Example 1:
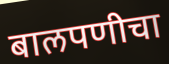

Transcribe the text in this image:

बालपणीचा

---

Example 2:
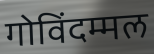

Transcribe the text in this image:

गोविंदम्मल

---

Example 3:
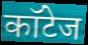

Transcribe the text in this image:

कॉटेज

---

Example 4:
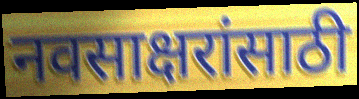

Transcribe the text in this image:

नवसाक्षरांसाठी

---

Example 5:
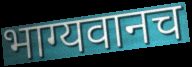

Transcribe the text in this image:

भाग्यवानच